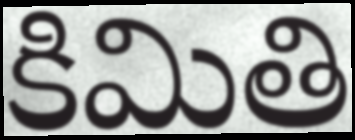
కిమితి